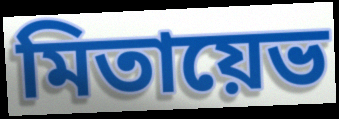
মিতায়েভ